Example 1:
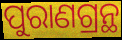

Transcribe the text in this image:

ପୁରାଣଗ୍ରନ୍ଥ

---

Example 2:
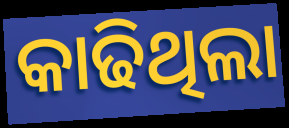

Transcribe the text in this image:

କାଢିଥିଲା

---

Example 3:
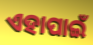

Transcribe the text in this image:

ଏହାପାଇଁ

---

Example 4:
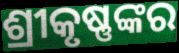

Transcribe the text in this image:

ଶ୍ରୀକୃଷ୍ଣଙ୍କର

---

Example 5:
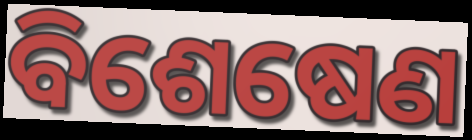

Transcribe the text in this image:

ବିଶେଷେଣ